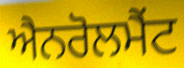
ਐਨਰੋਲਮੈਂਟ